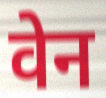
वेन